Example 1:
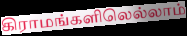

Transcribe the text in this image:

கிராமங்களிலெல்லாம்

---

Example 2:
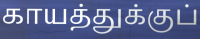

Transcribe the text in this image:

காயத்துக்குப்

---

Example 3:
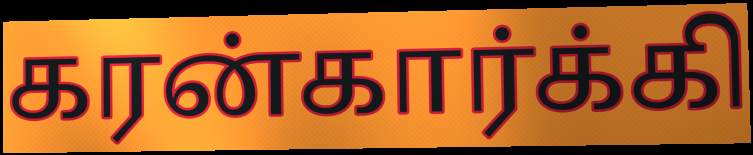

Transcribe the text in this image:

கரன்கார்க்கி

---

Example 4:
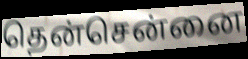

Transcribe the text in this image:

தென்சென்னை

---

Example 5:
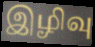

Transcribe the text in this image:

இழிவு